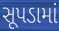
સૂપડામાં